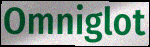
Omniglot